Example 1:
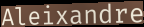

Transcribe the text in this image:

Aleixandre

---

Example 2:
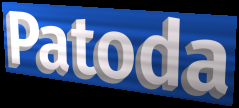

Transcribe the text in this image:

Patoda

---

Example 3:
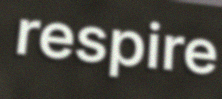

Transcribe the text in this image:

respire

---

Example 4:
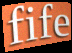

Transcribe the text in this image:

fife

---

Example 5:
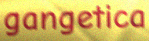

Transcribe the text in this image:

gangetica